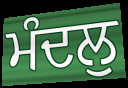
ਮੰਦਲੁ